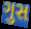
ગુસ